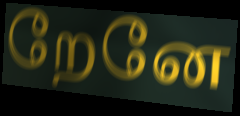
றேனே